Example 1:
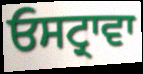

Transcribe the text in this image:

ਓਸਟ੍ਰਾਵਾ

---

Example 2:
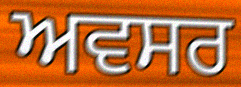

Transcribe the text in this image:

ਅਵਸਰ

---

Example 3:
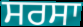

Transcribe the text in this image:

ਸਰਸਾ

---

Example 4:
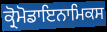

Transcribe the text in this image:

ਕ੍ਰੋਮੋਡਾਇਨਾਮਿਕਸ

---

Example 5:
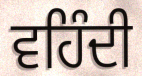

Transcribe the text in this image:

ਵਹਿੰਦੀ